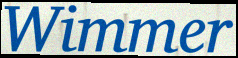
Wimmer